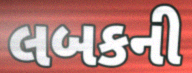
લબકની